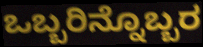
ಒಬ್ಬರಿನ್ನೊಬ್ಬರ